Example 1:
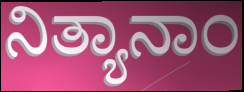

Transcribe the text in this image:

ನಿತ್ಯಾನಾಂ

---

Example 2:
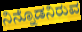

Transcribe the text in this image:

ನಿನ್ನೊಡನಿರುವ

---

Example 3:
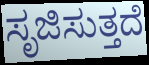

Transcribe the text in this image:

ಸೃಜಿಸುತ್ತದೆ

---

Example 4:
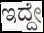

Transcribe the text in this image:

ಇದ್ದೇ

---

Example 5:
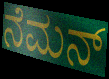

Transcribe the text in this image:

ನೆಮನ್